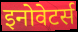
इनोवेटर्स